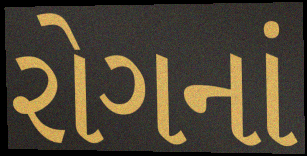
રોગનાં